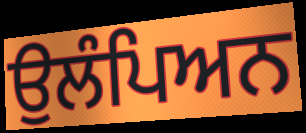
ਉਲੰਪਿਅਨ